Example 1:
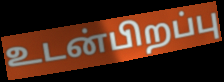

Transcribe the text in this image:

உடன்பிறப்பு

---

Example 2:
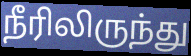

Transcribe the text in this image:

நீரிலிருந்து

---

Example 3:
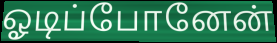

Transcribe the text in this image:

ஓடிப்போனேன்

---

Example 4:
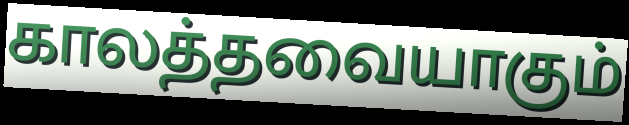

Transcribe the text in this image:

காலத்தவையாகும்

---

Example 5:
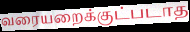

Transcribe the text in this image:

வரையறைக்குட்படாத